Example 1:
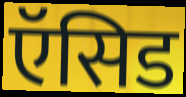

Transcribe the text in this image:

ऍसिड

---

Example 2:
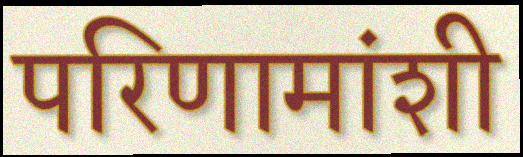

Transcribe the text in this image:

परिणामांशी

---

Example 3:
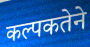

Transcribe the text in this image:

कल्पकतेने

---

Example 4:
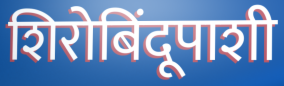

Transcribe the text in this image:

शिरोबिंदूपाशी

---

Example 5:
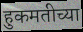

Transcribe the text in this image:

हुकमतीच्या